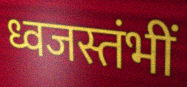
ध्वजस्तंभीं